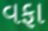
વફા